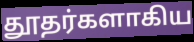
தூதர்களாகிய